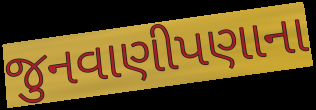
જુનવાણીપણાના